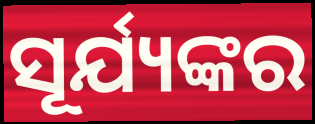
ସୂର୍ଯ୍ୟଙ୍କର